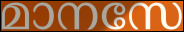
മാനസേ